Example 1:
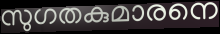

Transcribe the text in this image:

സുഗതകുമാരനെ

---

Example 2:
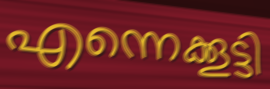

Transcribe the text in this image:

എന്നെക്കൂട്ടി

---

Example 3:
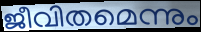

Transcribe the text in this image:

ജീവിതമെന്നും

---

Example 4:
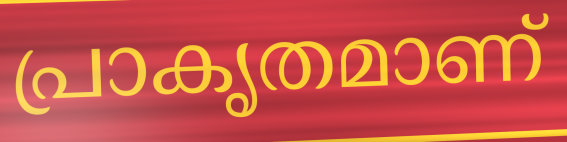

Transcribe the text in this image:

പ്രാകൃതമാണ്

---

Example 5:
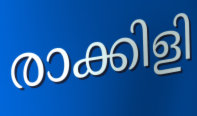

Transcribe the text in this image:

രാക്കിളി